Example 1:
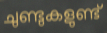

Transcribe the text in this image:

ചുണ്ടുകളുണ്ട്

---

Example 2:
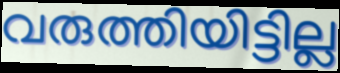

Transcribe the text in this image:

വരുത്തിയിട്ടില്ല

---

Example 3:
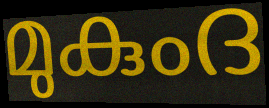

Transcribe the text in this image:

മുകുംദ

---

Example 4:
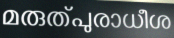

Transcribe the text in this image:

മരുത്പുരാധീശ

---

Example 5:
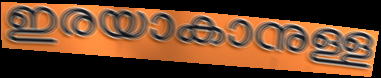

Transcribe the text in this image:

ഇരയാകാനുള്ള